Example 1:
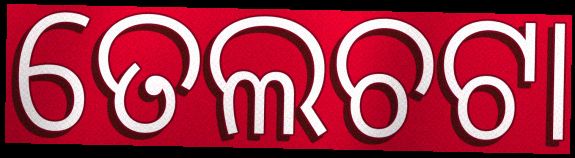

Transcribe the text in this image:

ତେଲଚଟା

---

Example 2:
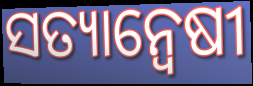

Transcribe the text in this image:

ସତ୍ୟାନ୍ଵେଷୀ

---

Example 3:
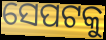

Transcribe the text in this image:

ସେପଟକୁ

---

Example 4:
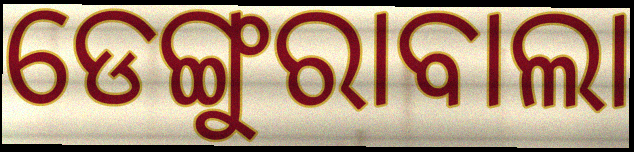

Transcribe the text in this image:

ଡେଙ୍ଗୁରାବାଲା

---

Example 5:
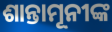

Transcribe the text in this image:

ଶାନ୍ତାମୂନୀଙ୍କ